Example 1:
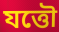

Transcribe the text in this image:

যত্তৌ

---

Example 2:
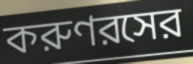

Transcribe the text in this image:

করুণরসের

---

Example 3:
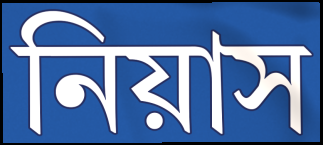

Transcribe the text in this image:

নিয়াস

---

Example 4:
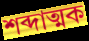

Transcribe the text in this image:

শব্দাত্মক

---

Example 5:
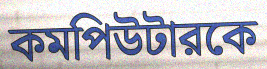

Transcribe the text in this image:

কমপিউটারকে